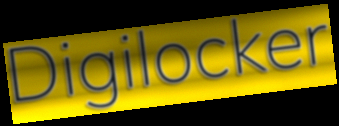
Digilocker